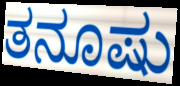
ತನೂಷು